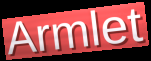
Armlet